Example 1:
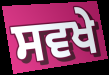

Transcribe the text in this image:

ਸਵਖੇ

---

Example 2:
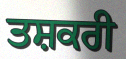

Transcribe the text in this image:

ਤਸ਼ਕਰੀ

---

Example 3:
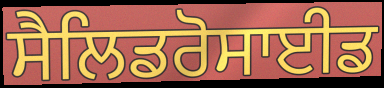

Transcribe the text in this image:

ਸੈਲਿਡਰੋਸਾਈਡ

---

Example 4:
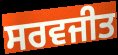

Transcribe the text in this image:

ਸਰਵਜੀਤ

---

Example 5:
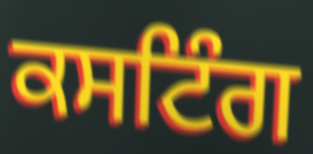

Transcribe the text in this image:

ਕਸਟਿੰਗ